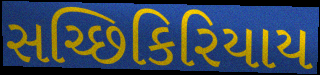
સચ્છિકિરિયાય